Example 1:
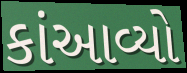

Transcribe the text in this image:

કાંઆવ્યો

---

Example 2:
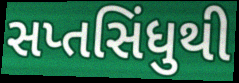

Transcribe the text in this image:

સપ્તસિંધુથી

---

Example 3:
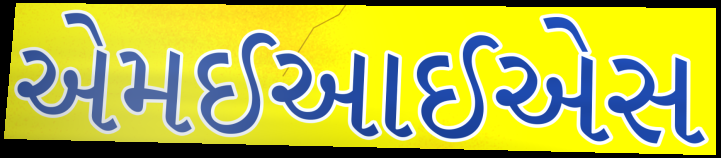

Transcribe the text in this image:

એમઈઆઈએસ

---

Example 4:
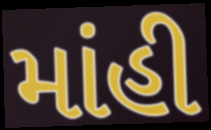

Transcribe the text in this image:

માંહી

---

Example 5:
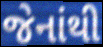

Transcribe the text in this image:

જેનાંથી